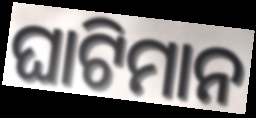
ଘାଟିମାନ